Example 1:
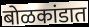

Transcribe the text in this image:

बोळकांडात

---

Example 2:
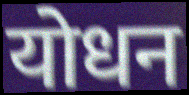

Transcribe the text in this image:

योधन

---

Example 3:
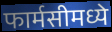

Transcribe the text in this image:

फार्मसीमध्ये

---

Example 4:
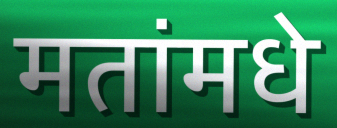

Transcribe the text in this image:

मतांमधे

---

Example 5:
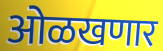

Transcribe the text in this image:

ओळखणार